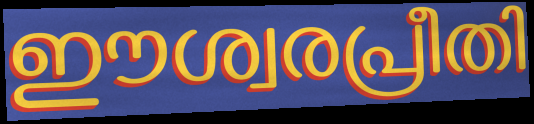
ഈശ്വരപ്രീതി